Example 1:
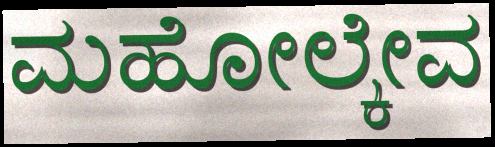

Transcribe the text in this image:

ಮಹೋಲ್ಕೇವ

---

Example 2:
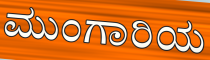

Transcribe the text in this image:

ಮುಂಗಾರಿಯ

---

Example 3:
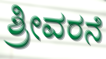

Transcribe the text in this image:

ಶ್ರೀವರನೆ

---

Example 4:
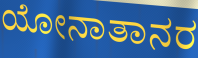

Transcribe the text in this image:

ಯೋನಾತಾನರ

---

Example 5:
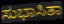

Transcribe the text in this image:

ಸುಭಾಸಿತಾ